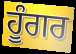
ਹੂੰਗਰ